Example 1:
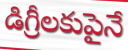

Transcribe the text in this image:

డిగ్రీలకుపైనే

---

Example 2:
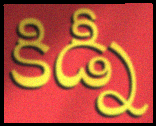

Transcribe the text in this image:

కిడ్నీ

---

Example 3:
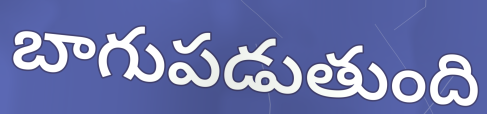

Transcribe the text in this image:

బాగుపడుతుంది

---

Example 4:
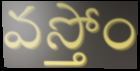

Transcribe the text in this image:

వస్తోం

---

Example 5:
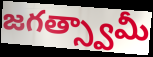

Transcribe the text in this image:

జగత్స్వామీ